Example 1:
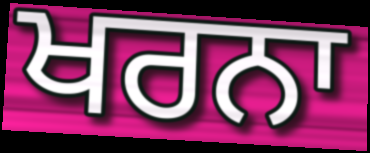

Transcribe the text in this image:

ਖਰਨਾ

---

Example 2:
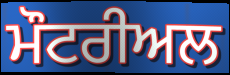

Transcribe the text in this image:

ਮੌਟਰੀਅਲ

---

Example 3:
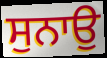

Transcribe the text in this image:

ਸੁਨਾਉ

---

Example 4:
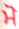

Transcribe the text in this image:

ਮੋ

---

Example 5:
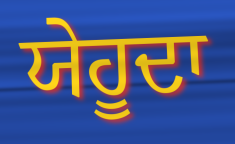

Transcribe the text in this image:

ਯੇਹੂਦਾ